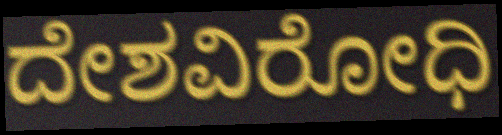
ದೇಶವಿರೋಧಿ